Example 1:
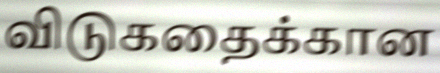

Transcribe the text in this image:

விடுகதைக்கான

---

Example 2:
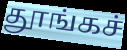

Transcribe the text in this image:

தூங்கச்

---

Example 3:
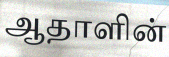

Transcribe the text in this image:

ஆதாளின்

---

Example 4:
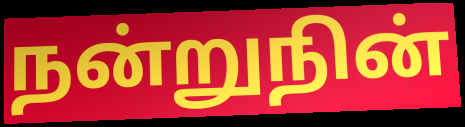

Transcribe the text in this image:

நன்றுநின்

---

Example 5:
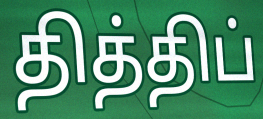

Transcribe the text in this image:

தித்திப்